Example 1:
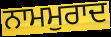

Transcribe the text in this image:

ਨਾਮਮੁਰਾਦ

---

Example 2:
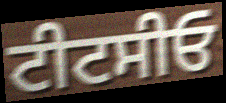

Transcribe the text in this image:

ਟੀਟਸੀਓ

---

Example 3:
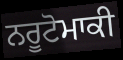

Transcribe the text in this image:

ਨਰੂਟੋਮਾਕੀ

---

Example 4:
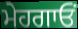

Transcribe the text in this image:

ਮੇਹਗਾਓਂ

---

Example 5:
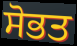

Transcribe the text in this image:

ਸੋਭਤ